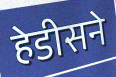
हेडीसने